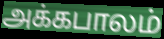
அக்கபாலம்